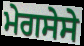
ਮੇਗਸੇਸੇ